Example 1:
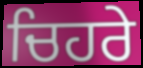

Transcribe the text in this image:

ਚਿਹਰੇ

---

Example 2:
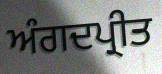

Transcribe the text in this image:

ਅੰਗਦਪ੍ਰੀਤ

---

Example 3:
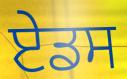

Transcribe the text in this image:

ਏਡਸ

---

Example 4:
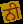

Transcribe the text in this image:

ਨੀ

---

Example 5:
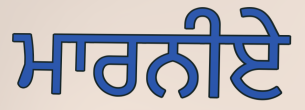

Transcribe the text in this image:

ਮਾਰਨੀਏ